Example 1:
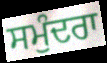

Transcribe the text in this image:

ਸਮੁੰਦਰਾ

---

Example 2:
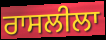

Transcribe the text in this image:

ਰਾਸਲੀਲਾ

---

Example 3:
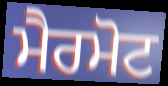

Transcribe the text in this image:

ਮੈਰਮੋਟ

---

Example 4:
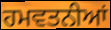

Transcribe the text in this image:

ਹਮਵਤਨੀਆਂ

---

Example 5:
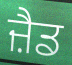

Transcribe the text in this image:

ਜ਼ੈਡ